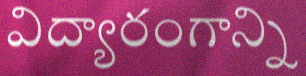
విద్యారంగాన్ని